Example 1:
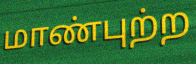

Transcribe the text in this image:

மாண்புற்ற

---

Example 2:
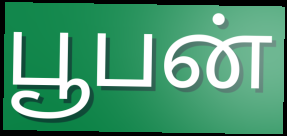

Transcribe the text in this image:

பூபன்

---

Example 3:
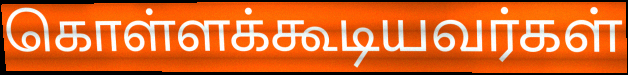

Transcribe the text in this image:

கொள்ளக்கூடியவர்கள்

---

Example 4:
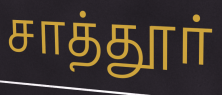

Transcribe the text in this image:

சாத்தூர்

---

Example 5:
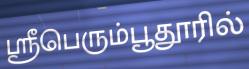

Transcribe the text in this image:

ஸ்ரீபெரும்பூதூரில்